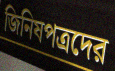
জিনিষপত্রদের